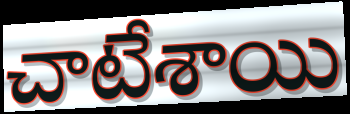
చాటేశాయి